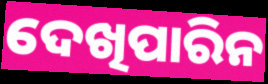
ଦେଖିପାରିନ